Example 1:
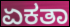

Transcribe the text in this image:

ಏಕತಾ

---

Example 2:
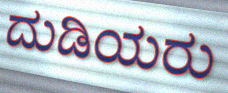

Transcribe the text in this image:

ದುಡಿಯರು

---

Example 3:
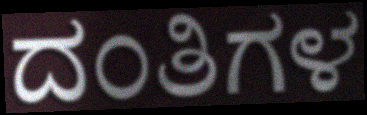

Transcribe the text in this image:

ದಂತಿಗಳ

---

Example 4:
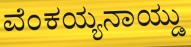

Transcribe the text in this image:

ವೆಂಕಯ್ಯನಾಯ್ಡು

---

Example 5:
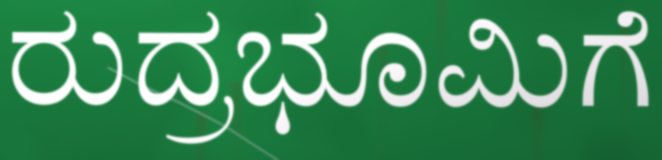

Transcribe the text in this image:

ರುದ್ರಭೂಮಿಗೆ